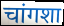
चांगशा